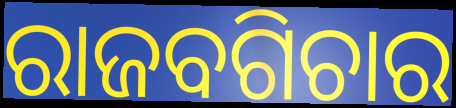
ରାଜବଗିଚାର